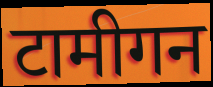
टामीगन